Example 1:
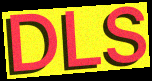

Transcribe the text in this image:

DLS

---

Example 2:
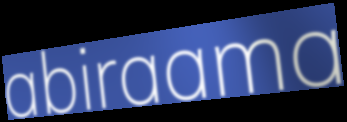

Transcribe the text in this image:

abiraama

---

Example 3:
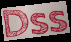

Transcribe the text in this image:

Dss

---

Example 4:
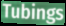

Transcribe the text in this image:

Tubings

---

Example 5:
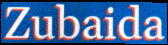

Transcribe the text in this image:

Zubaida